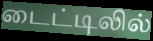
டைட்டிலில்